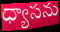
ధ్యాసను